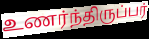
உணர்ந்திருப்பர்